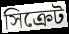
সিক্রেট